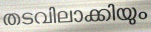
തടവിലാക്കിയും